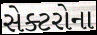
સેક્ટરોના